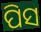
ପିସ